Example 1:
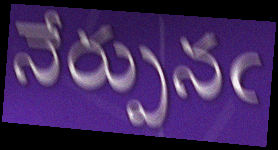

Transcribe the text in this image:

నేర్పునఁ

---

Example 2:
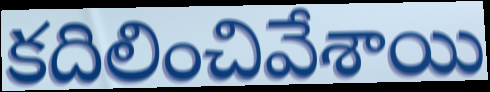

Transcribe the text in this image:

కదిలించివేశాయి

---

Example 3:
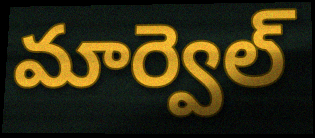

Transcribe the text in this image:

మార్వెల్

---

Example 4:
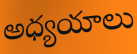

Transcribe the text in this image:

అధ్యయాలు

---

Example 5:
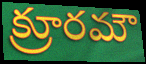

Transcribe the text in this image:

క్రూరమౌ